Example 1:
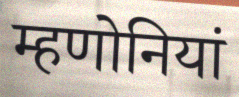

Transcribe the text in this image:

म्हणोनियां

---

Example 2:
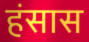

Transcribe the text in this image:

हंसास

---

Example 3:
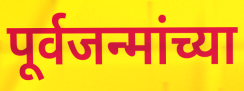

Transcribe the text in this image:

पूर्वजन्मांच्या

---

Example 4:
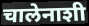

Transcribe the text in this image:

चालेनाशी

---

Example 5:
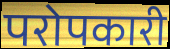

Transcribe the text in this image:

परोपकारी